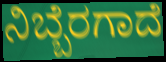
ನಿಬ್ಬೆರಗಾದೆ